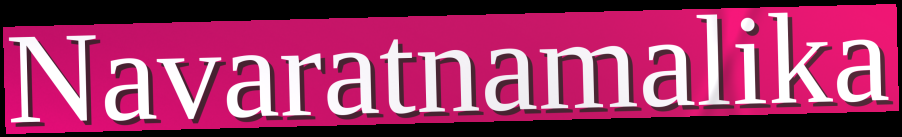
Navaratnamalika